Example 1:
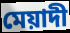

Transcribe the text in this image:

মেয়াদী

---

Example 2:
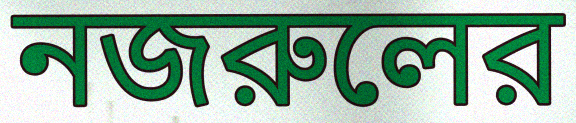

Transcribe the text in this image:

নজরুলের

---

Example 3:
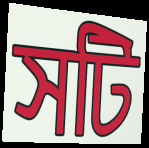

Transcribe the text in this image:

সটি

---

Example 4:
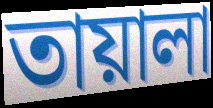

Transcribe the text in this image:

তায়ালা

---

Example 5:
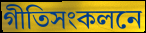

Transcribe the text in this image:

গীতিসংকলনে